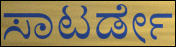
ಸಾಟರ್ಡೇ